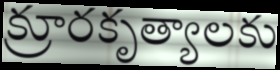
క్రూరకృత్యాలకు